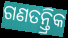
ଗଣତନ୍ତ୍ରିକ